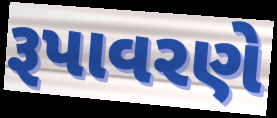
રૂપાવરણે